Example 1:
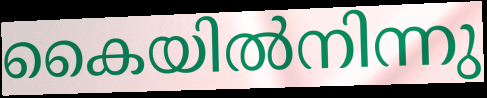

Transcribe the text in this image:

കൈയിൽനിന്നു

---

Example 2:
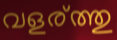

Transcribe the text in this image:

വളര്ത്തു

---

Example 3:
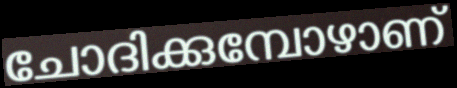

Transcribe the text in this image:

ചോദിക്കുമ്പോഴാണ്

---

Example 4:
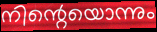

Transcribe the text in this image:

നിന്റെയൊന്നും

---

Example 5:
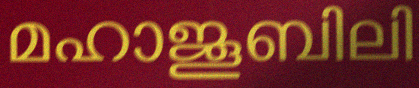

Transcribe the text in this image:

മഹാജൂബിലി